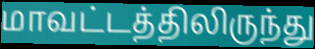
மாவட்டத்திலிருந்து